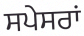
ਸਪੇਸਰਾਂ